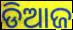
ଡିଆଜ